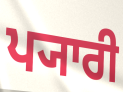
ਪ੍ਯਾਰੀ